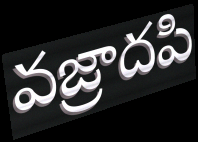
వజ్రాదపి